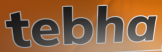
tebha